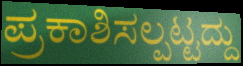
ಪ್ರಕಾಶಿಸಲ್ಪಟ್ಟದ್ದು